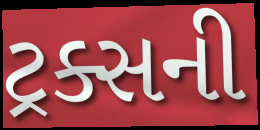
ટ્રક્સની